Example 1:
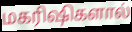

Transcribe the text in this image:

மகரிஷிகளால்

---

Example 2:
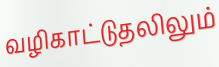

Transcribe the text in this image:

வழிகாட்டுதலிலும்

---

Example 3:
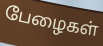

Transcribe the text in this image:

பேழைகள்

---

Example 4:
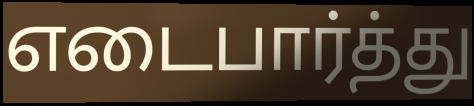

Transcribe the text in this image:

எடைபார்த்து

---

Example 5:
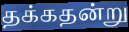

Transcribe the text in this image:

தக்கதன்று